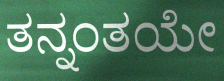
ತನ್ನಂತಯೇ